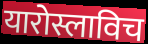
यारोस्लाविच